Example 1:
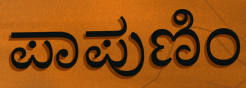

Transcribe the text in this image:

ಪಾಪುಣಿಂ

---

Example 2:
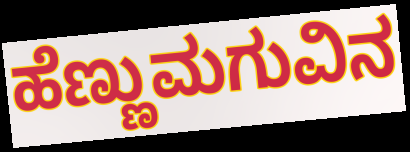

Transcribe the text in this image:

ಹೆಣ್ಣುಮಗುವಿನ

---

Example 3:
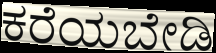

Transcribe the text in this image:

ಕರೆಯಬೇಡಿ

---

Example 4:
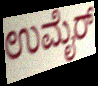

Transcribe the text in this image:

ಉಮೈರ್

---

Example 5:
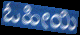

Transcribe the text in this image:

ಓಹೀಯಿ